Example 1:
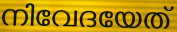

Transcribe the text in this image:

നിവേദയേത്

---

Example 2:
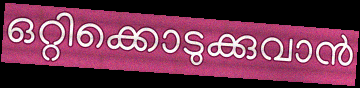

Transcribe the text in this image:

ഒറ്റിക്കൊടുക്കുവാൻ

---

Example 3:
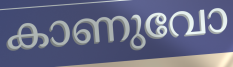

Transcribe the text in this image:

കാണുവോ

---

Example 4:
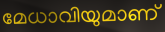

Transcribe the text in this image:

മേധാവിയുമാണ്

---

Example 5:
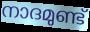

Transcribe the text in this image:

നാദമുണ്ട്